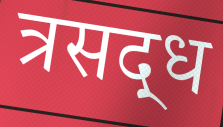
त्रसद्ध